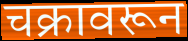
चक्रावरून